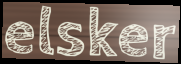
elsker